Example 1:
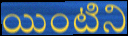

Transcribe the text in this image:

యింటిని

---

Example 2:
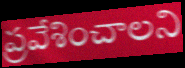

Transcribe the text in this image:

ప్రవేశించాలని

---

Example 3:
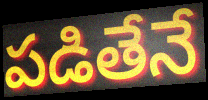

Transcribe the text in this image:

పడితేనే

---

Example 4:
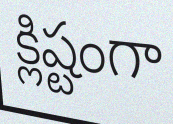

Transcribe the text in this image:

క్లిష్టంగా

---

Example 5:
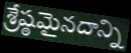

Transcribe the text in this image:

శ్రేష్ఠమైనదాన్ని